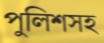
পুলিশসহ